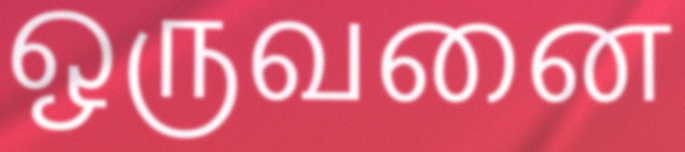
ஒருவனை